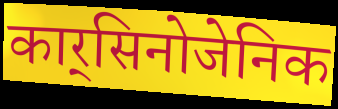
कार्सिनोजेनिक